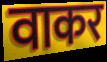
वाकर